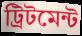
ট্রিটমেন্ট